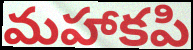
మహాకపి